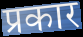
प्रकार